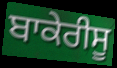
ਬਾਕੇਰੀਸੂ